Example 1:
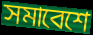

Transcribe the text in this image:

সমাবেশে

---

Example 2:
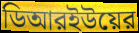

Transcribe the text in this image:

ডিআরইউয়ের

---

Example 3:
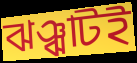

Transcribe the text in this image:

ঝঞ্ঝাটই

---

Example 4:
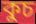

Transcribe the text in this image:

কুচ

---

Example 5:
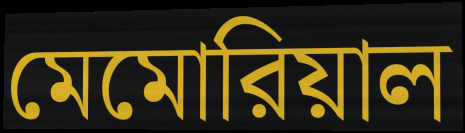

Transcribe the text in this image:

মেমোরিয়াল